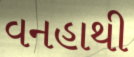
વનહાથી